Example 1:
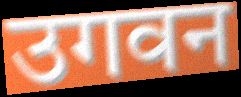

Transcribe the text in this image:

उगवन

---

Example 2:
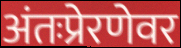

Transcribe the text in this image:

अंतःप्रेरणेवर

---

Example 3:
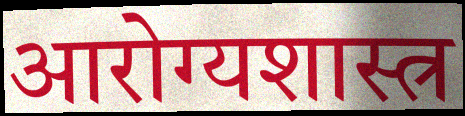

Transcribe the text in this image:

आरोग्यशास्त्र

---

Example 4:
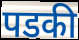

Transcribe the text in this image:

पडकी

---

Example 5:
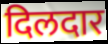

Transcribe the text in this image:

दिलदार